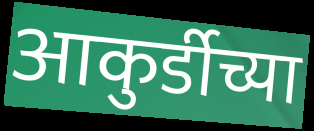
आकुर्डीच्या